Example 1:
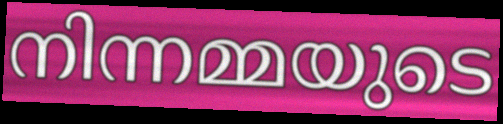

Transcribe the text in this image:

നിന്നമ്മയുടെ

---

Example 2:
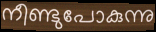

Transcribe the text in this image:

നീണ്ടുപോകുന്നു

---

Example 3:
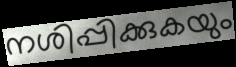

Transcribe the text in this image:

നശിപ്പിക്കുകയും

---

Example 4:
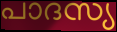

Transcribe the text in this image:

പാദസ്യ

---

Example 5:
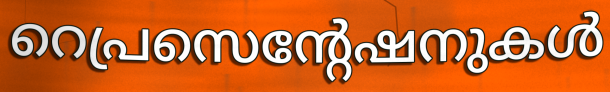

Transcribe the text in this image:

റെപ്രസെന്റേഷനുകൾ